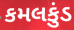
કમલકુંડ